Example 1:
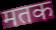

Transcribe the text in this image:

मतक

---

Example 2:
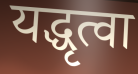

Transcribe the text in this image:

यद्धृत्वा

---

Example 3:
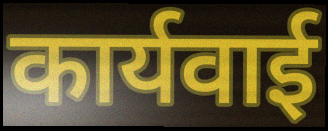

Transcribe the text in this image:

कार्यवाई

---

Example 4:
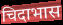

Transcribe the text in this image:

चिदाभास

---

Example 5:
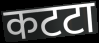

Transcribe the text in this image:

कटटा